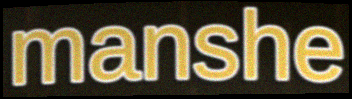
manshe